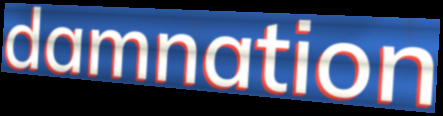
damnation